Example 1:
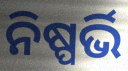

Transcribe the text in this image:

ନିଷ୍ପର୍ଭି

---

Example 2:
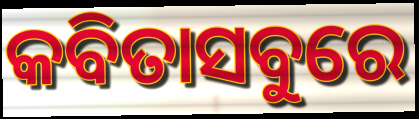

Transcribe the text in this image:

କବିତାସବୁରେ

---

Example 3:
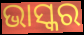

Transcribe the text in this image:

ଭାସ୍କର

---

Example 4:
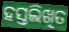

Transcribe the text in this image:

ହସ୍ତଲିଖିତ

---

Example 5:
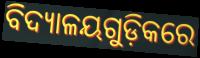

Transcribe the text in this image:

ବିଦ୍ୟାଳୟଗୁଡ଼ିକରେ